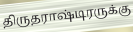
திருதராஷ்டிரருக்கு